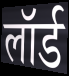
लॉर्ड